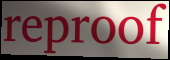
reproof